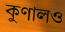
কুণালও